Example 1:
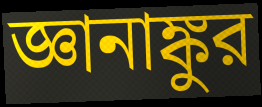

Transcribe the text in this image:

জ্ঞানাঙ্কুর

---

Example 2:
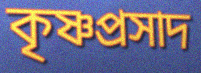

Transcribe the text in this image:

কৃষ্ণপ্রসাদ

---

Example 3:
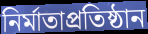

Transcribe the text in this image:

নির্মাতাপ্রতিষ্ঠান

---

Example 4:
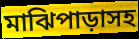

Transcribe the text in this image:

মাঝিপাড়াসহ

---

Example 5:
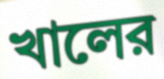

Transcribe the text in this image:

খালের